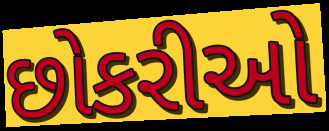
છોકરીઓ